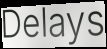
Delays